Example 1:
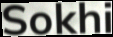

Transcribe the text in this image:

Sokhi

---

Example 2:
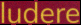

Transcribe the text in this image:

ludere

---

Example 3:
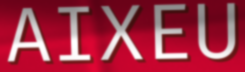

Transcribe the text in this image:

AIXEU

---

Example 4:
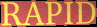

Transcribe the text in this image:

RAPID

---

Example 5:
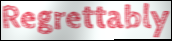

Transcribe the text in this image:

Regrettably